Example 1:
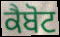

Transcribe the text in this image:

ਕੈਬੋਟ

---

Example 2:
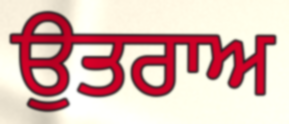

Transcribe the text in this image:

ਉਤਰਾਅ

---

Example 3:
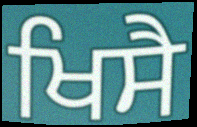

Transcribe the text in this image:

ਖਿਸੈ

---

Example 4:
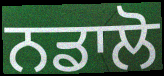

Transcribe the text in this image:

ਨਡਾਲੋ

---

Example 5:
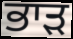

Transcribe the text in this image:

ਭਾੜ